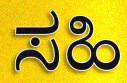
ಸಹಿ